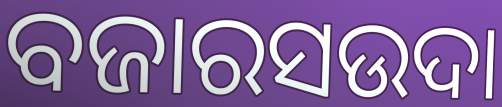
ବଜାରସଉଦା